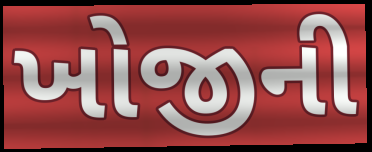
ખોજીની